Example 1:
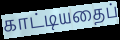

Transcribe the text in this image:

காட்டியதைப்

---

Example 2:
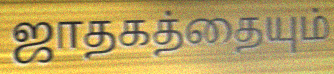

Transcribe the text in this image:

ஜாதகத்தையும்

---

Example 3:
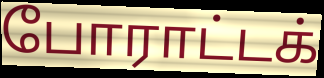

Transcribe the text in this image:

போராட்டக்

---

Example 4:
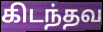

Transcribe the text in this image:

கிடந்தவ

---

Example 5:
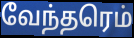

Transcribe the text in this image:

வேந்தரெம்